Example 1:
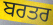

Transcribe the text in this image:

ਬਰਤਰ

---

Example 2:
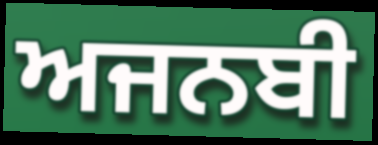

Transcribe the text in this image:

ਅਜਨਬੀ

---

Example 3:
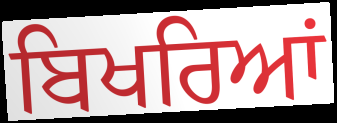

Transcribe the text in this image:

ਬਿਖਰਿਆਂ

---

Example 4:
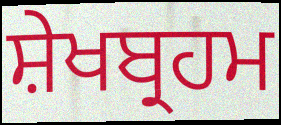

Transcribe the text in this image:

ਸ਼ੇਖਬ੍ਰਹਮ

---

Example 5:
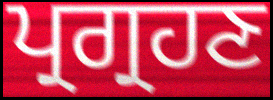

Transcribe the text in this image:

ਪ੍ਰਗ੍ਰਹਣ